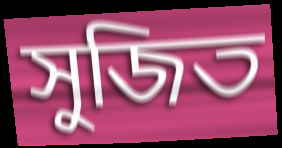
সুজিত